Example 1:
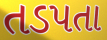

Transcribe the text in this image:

તડપતા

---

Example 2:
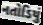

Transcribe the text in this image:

નતોડિયું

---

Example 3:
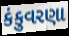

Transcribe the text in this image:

કંકુવરણા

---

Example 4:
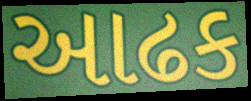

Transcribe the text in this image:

આઢક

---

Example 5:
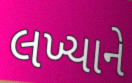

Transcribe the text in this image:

લખ્યાને